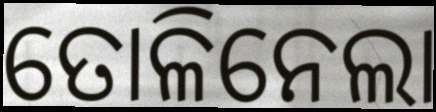
ତୋଳିନେଲା